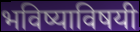
भविष्याविषयी